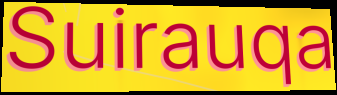
Suirauqa